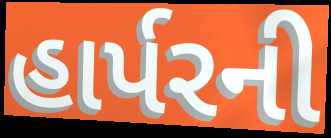
હાર્પરની